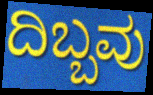
ದಿಬ್ಬವು